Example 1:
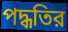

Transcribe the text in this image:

পদ্ধতির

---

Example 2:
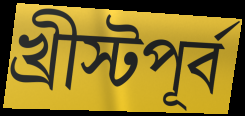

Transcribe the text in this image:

খ্রীস্টপূর্ব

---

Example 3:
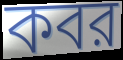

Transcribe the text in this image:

কবর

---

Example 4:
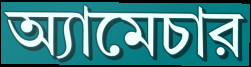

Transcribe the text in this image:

অ্যামেচার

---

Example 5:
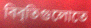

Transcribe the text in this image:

বিবৃতিগুলোতে